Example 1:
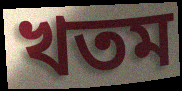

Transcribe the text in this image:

খতম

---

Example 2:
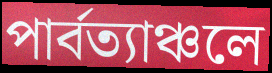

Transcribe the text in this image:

পার্বত্যাঞ্চলে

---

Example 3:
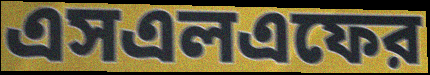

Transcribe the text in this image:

এসএলএফের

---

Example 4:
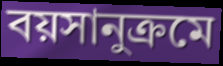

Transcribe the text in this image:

বয়সানুক্রমে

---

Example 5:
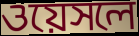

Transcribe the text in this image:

ওয়েসলে